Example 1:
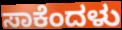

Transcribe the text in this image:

ಸಾಕೆಂದಳು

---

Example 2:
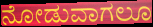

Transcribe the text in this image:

ನೋಡುವಾಗಲೂ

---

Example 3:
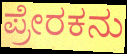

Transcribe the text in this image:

ಪ್ರೇರಕನು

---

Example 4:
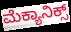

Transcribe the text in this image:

ಮೆಕ್ಯಾನಿಕ್ಸ್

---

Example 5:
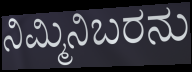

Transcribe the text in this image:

ನಿಮ್ಮಿನಿಬರನು